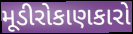
મૂડીરોકાણકારો